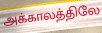
அக்காலத்திலே